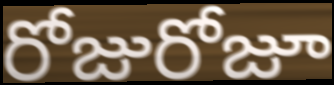
రోజురోజూ